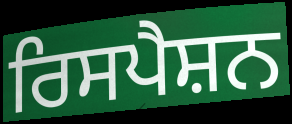
ਰਿਸਪੈਸ਼ਨ